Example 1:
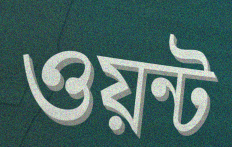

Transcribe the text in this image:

ওয়ন্ট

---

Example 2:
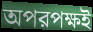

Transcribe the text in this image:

অপরপক্ষই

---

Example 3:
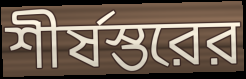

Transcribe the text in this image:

শীর্ষস্তরের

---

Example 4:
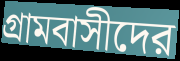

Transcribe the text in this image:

গ্রামবাসীদের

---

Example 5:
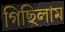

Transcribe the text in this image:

গিছিলাম